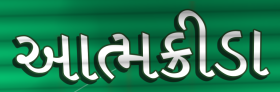
આત્મક્રીડા